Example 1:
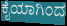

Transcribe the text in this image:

ಕೈಯಾಗಿಂದ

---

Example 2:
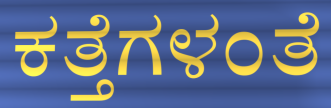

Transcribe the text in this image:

ಕತ್ತೆಗಳಂತೆ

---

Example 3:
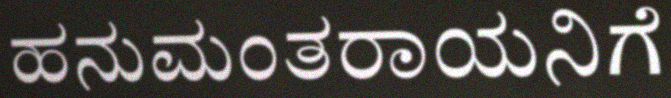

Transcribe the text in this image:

ಹನುಮಂತರಾಯನಿಗೆ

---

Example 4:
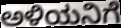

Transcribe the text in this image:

ಅಳಿಯನಿಗೆ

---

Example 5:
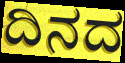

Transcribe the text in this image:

ದಿನದ